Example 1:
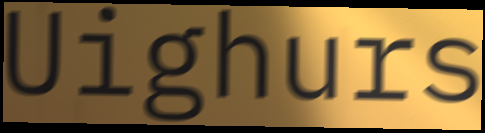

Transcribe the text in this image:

Uighurs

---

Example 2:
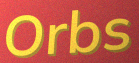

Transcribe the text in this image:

Orbs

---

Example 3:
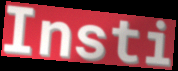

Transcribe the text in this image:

Insti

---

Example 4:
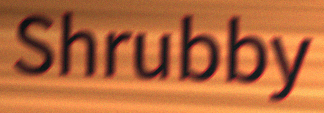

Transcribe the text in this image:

Shrubby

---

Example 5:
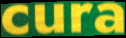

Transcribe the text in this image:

cura